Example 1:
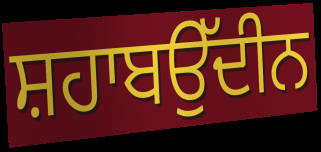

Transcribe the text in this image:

ਸ਼ਹਾਬਉੱਦੀਨ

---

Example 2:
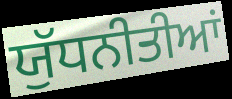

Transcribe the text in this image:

ਯੁੱਧਨੀਤੀਆਂ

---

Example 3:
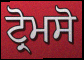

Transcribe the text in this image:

ਟ੍ਰੋਮਸੋ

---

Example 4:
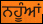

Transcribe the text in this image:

ਨਹੂੰਆਂ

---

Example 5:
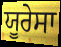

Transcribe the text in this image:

ਯੂਰੇਸਾ